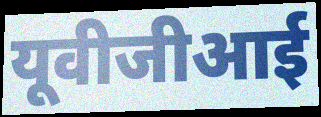
यूवीजीआई